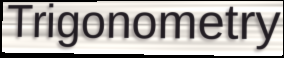
Trigonometry